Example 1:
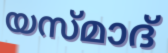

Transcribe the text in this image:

യസ്മാദ്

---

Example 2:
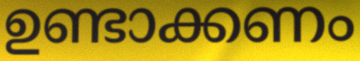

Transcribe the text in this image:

ഉണ്ടാക്കണം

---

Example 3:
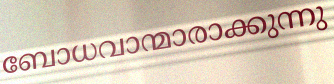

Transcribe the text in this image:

ബോധവാന്മാരാക്കുന്നു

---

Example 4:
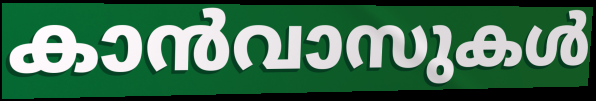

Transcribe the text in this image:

കാൻവാസുകൾ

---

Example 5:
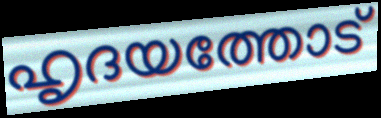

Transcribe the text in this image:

ഹൃദയത്തോട്